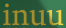
inuu